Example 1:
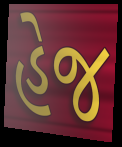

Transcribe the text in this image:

હેજ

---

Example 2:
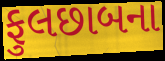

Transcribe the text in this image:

ફુલછાબના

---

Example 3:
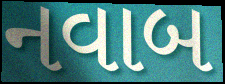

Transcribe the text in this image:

નવાબ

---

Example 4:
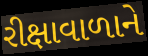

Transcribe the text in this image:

રીક્ષાવાળાને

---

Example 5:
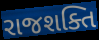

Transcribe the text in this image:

રાજશક્તિ